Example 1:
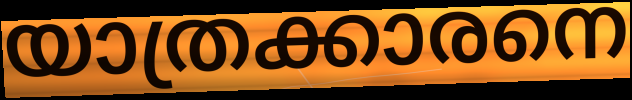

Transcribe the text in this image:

യാത്രക്കാരനെ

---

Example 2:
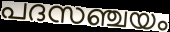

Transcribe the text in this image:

പദസഞ്ചയം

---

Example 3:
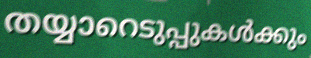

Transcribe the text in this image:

തയ്യാറെടുപ്പുകൾക്കും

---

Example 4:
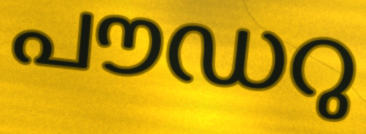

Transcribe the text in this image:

പൗഡറു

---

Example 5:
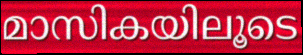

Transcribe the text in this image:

മാസികയിലൂടെ